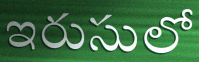
ఇరుసులో